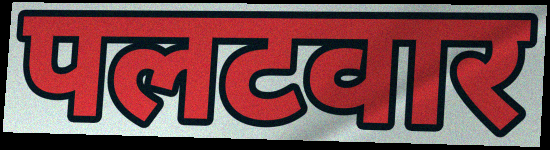
पलटवार